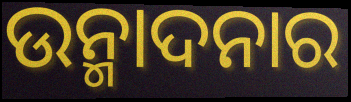
ଉନ୍ମାଦନାର